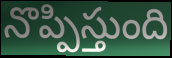
నొప్పిస్తుంది